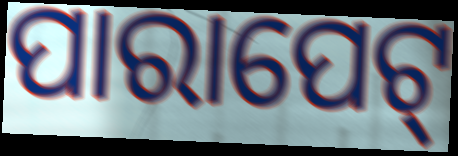
ପାରାପେଟ୍